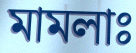
মামলাঃ